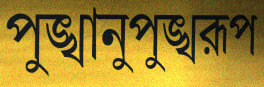
পুঙ্খানুপুঙ্খরূপ